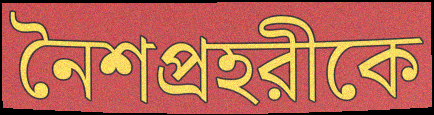
নৈশপ্রহরীকে